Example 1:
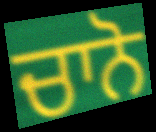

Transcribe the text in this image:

ਚਾਨੋ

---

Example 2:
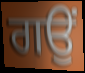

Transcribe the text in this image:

ਗਉਂ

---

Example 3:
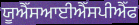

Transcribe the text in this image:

ਯੂਐੱਸਆਈਐੱਸਪੀਐੱਫ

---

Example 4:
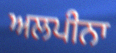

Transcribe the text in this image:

ਅਲਪੀਨਾ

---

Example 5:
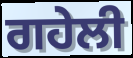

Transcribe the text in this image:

ਗਹੇਲੀ